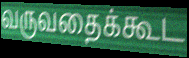
வருவதைக்கூட